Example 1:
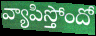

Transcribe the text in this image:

వ్యాపిస్తోందో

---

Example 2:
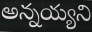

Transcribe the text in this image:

అన్నయ్యని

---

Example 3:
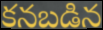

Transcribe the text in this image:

కనబడిన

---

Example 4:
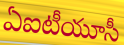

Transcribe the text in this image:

ఏఐటీయూసీ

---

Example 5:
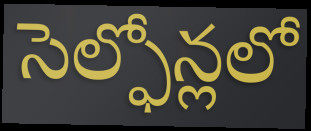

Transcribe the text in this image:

సెల్ఫోన్లలో